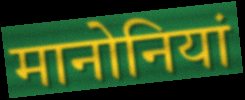
मानोनियां